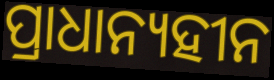
ପ୍ରାଧାନ୍ୟହୀନ